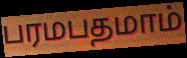
பரமபதமாம்